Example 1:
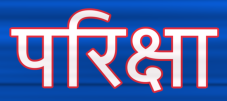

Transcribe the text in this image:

परिक्षा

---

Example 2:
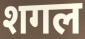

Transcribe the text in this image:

शगल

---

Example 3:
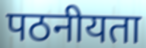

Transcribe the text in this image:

पठनीयता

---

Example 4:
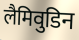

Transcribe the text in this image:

लैमिवुडिन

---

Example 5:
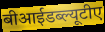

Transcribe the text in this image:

बीआईडब्ल्यूटीए